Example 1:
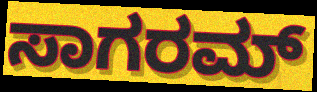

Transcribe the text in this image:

ಸಾಗರಮ್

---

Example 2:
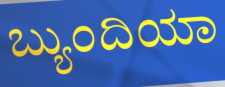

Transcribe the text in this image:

ಬ್ಯುಂದಿಯಾ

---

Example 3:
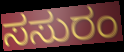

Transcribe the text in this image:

ಸಸುರಂ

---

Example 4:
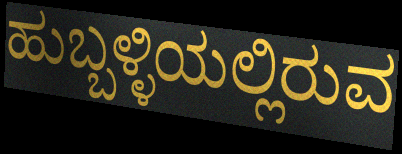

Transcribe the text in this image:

ಹುಬ್ಬಳ್ಳಿಯಲ್ಲಿರುವ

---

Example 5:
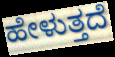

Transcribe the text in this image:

ಹೇಳುತ್ತದೆ